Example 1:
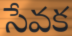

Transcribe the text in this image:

సేవక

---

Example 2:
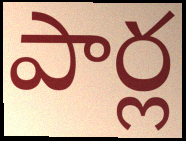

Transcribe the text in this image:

పార్ల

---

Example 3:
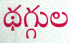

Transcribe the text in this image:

థగ్గుల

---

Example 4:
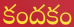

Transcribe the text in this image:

కందకం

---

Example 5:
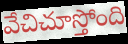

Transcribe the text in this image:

వేచిచూస్తోంది